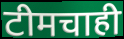
टीमचाही